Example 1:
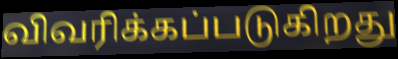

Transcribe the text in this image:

விவரிக்கப்படுகிறது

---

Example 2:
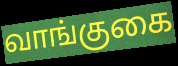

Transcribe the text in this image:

வாங்குகை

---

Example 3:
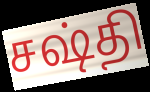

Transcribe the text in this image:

சஷ்தி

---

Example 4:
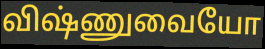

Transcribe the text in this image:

விஷ்ணுவையோ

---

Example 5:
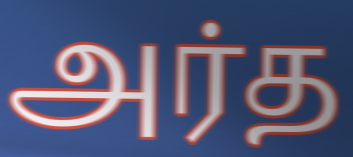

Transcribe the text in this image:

அர்த